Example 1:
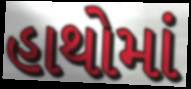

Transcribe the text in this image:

હાથોમાં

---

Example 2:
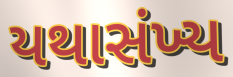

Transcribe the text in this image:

યથાસંખ્ય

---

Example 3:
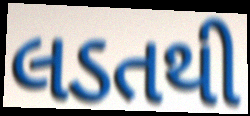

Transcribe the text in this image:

લડતથી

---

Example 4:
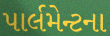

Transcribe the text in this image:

પાર્લમેન્ટના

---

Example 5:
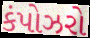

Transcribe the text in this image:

કંપોઝરો